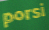
porsi